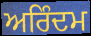
ਅਰਿੰਦਮ